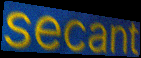
secant